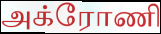
அக்ரோணி